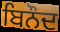
ਬਿਨੌਦ